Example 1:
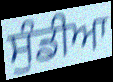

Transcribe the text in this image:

ਸੁੰਡੀਆ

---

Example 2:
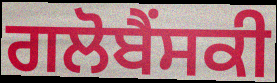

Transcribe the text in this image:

ਗਲੋਬੈਂਸਕੀ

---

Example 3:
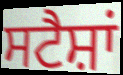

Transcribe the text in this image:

ਸਟੈਸ਼ਾਂ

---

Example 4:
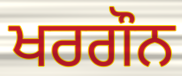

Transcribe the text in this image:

ਖਰਗੌਨ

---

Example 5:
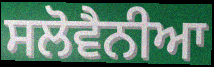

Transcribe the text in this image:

ਸਲੋਵੈਨੀਆ